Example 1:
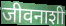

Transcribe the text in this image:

जीवनाशी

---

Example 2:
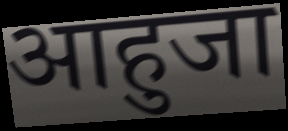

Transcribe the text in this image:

आहुजा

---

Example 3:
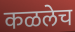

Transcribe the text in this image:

कळलेच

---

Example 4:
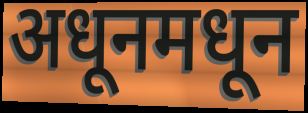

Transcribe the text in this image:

अधूनमधून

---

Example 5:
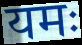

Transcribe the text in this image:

यमः